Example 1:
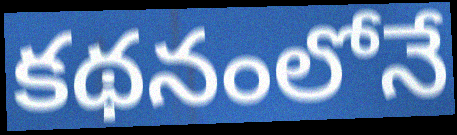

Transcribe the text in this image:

కథనంలోనే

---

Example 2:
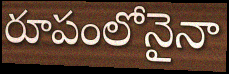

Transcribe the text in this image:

రూపంలోనైనా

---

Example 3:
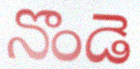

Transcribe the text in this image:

నొండె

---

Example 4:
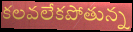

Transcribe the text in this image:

కలవలేకపోతున్న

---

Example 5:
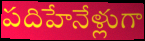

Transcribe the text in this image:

పదిహేనేళ్లుగా